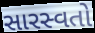
સારસ્વતો